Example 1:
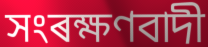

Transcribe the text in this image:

সংৰক্ষণবাদী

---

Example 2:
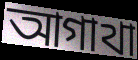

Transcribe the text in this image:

আগাথা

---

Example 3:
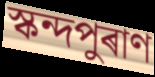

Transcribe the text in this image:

স্কন্দপুৰাণ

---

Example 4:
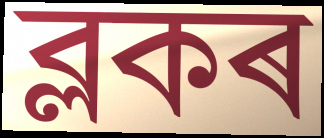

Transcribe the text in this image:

ব্লকৰ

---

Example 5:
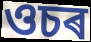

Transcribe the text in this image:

ওচৰ